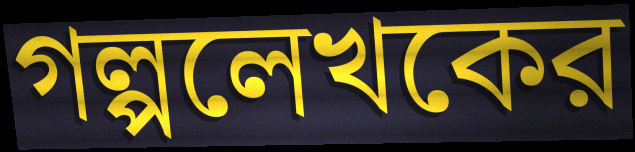
গল্পলেখকের